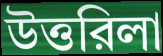
উত্তরিলা